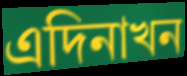
এদিনাখন